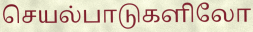
செயல்பாடுகளிலோ